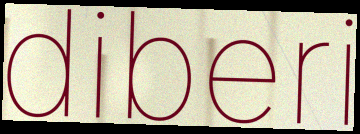
diberi